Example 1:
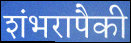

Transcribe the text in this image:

शंभरापैकी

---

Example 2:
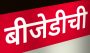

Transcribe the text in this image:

बीजेडीची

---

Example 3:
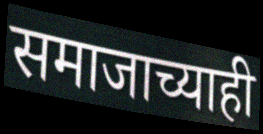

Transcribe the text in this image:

समाजाच्याही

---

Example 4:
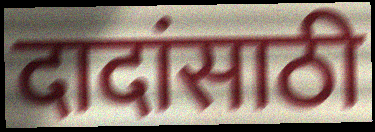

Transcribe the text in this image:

दादांसाठी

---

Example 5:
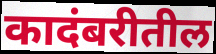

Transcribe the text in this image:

कादंबरीतील